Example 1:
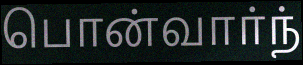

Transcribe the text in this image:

பொன்வார்ந்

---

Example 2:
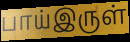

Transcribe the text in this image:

பாய்இருள்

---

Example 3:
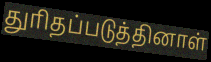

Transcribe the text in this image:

துரிதப்படுத்தினாள்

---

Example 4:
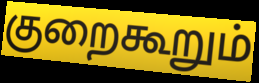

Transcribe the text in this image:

குறைகூறும்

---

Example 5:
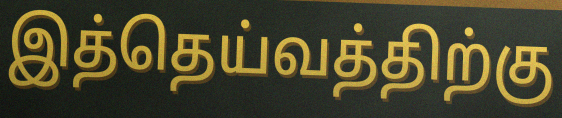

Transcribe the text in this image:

இத்தெய்வத்திற்கு